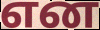
என